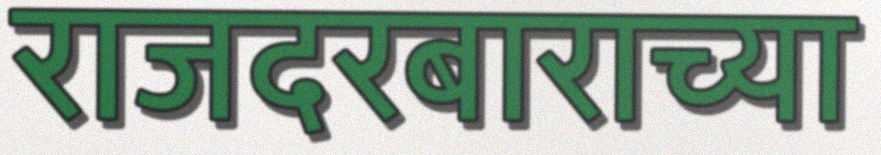
राजदरबाराच्या